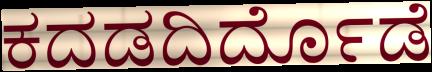
ಕದಡದಿರ್ದೊಡೆ